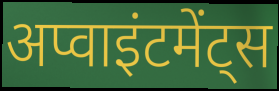
अप्वाइंटमेंट्स